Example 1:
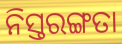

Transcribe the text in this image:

ନିସ୍ତରଙ୍ଗତା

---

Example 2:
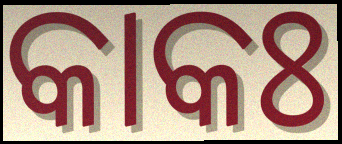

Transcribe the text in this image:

କାକଃ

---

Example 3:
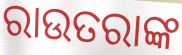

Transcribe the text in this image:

ରାଉତରାଙ୍କ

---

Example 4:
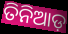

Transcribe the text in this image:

ତିନିଆଡ଼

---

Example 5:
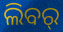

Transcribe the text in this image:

ଲିବର୍